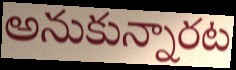
అనుకున్నారట